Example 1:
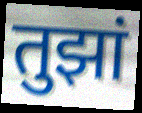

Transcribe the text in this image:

तुझां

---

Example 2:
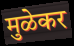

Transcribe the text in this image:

मुळेकर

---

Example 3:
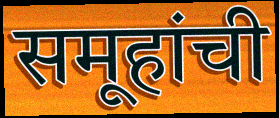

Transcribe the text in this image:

समूहांची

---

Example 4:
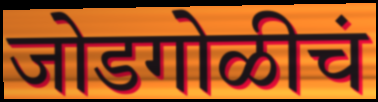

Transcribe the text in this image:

जोडगोळीचं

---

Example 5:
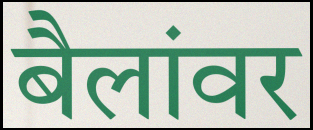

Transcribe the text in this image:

बैलांवर